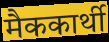
मैककार्थी